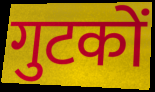
गुटकों